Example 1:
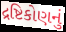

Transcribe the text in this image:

દ્રષ્ટિકોણનું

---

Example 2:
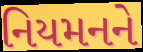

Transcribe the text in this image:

નિયમનને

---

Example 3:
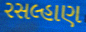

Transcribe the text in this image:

રસલ્હાણ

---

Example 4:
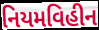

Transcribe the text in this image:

નિયમવિહીન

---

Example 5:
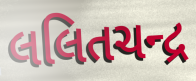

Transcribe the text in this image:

લલિતચન્દ્ર